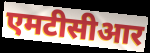
एमटीसीआर